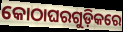
କୋଠାଘରଗୁଡ଼ିକରେ